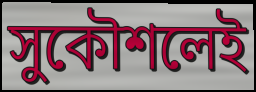
সুকৌশলেই